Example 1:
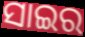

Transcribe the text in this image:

ସାଇର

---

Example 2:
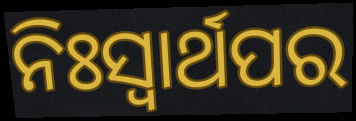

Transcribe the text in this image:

ନିଃସ୍ୱାର୍ଥପର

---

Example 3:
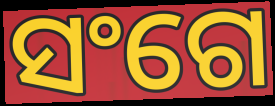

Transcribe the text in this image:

ସଂଗେ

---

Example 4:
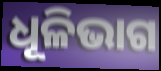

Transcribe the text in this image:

ଧୂଳିଭାଗ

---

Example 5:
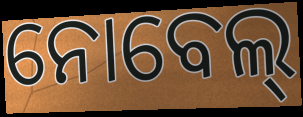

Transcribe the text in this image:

ନୋବେଲ୍